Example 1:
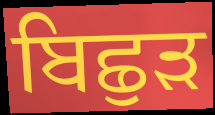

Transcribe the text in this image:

ਬਿਛੁੜ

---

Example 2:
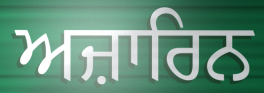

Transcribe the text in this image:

ਅਜ਼ਾਰਿਨ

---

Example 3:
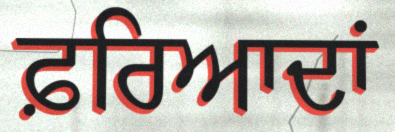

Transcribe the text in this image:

ਫ਼ਰਿਆਦਾਂ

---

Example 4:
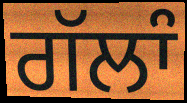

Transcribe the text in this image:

ਗੱਲਾੰ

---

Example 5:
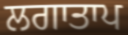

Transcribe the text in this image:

ਲਗਾਤਾਪ